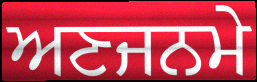
ਅਣਜਨਮੇ